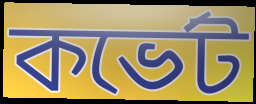
কর্ভেট